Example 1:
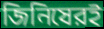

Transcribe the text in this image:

জিনিষেরই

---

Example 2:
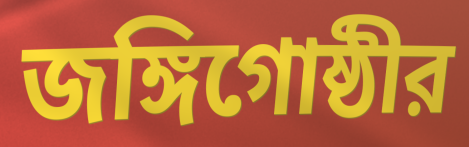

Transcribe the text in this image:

জঙ্গিগোষ্ঠীর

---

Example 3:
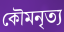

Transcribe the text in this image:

কৌমনৃত্য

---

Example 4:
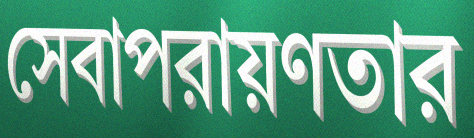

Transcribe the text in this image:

সেবাপরায়ণতার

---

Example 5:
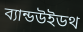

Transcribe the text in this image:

ব্যান্ডউইডথ